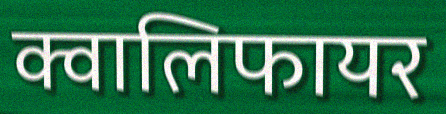
क्वालिफायर